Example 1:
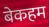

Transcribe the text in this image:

बेकहम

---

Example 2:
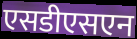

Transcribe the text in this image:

एसडीएसएन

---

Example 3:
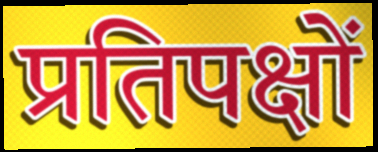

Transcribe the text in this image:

प्रतिपक्षों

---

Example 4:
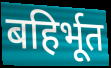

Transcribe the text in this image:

बहिर्भूत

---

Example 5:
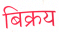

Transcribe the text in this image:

बिक्रय